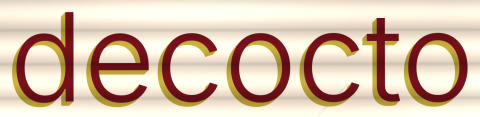
decocto